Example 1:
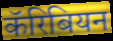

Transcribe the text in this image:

कॅरिबियन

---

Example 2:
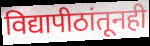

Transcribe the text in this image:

विद्यापीठांतूनही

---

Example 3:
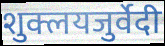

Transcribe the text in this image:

शुक्लयजुर्वेदी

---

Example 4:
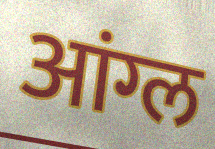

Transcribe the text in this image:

आंग्ल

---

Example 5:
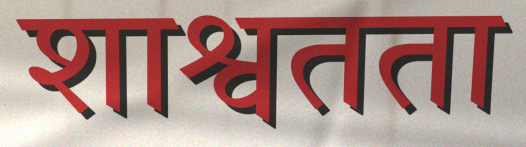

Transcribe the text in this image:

शाश्वतता